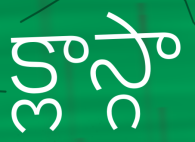
క్లాస్గా